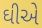
ઘીએ